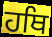
ਹਥਿ